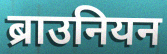
ब्राउनियन